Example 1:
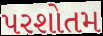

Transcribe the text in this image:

પરશોતમ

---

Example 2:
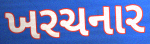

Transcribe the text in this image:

ખરચનાર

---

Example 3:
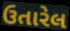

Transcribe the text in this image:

ઉતારેલ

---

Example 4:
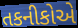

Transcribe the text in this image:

તકનીકોએ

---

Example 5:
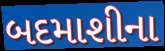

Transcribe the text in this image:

બદમાશીના